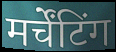
मर्चेंटिंग